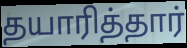
தயாரித்தார்